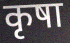
कृषा